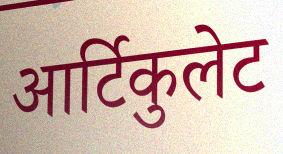
आर्टिकुलेट